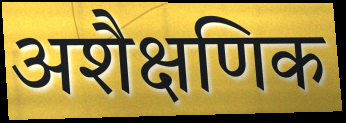
अशैक्षणिक